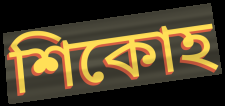
শিকোহ